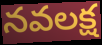
నవలక్ష